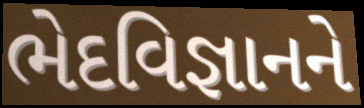
ભેદવિજ્ઞાનને